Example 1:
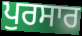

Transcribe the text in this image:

ਪੁਰਸਾਰ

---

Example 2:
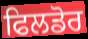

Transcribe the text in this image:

ਫਿਲਡੋਰ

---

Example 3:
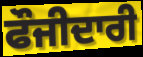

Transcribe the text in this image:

ਫੌਜੀਦਾਰੀ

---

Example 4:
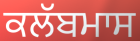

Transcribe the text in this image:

ਕਲੱਬਮਾਸ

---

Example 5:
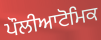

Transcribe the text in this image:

ਪੌਲੀਆਟੋਮਿਕ